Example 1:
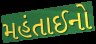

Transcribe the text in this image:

મહંતાઈનો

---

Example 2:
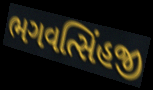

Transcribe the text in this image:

ભગવત્સિંહજી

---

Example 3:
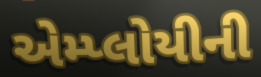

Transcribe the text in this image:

એમ્પ્લોયીની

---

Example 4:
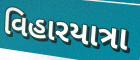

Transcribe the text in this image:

વિહારયાત્રા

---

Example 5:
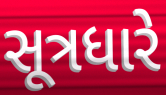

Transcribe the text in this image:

સૂત્રધારે